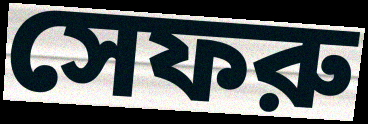
সেফরু